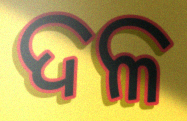
ଦଳ